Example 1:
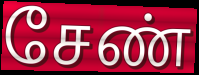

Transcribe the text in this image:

சேண்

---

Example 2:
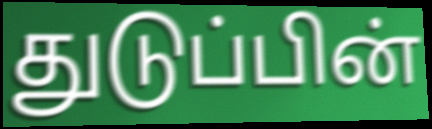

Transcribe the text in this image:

துடுப்பின்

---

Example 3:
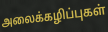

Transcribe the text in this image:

அலைக்கழிப்புகள்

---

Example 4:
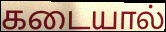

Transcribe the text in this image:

கடையால்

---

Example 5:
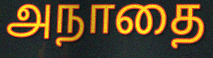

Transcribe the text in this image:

அநாதை